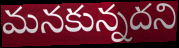
మనకున్నదని